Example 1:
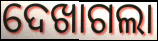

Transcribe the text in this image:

ଦେଖାଗଲା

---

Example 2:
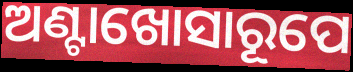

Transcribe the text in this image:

ଅଣ୍ଟାଖୋସାରୂପେ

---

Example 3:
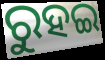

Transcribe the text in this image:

ରୁହଇ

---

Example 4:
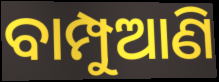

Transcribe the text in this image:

ବାମ୍ପୁଆଣି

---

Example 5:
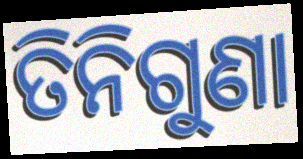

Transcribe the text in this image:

ତିନିଗୁଣା